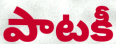
పాటకీ